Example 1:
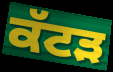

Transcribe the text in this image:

ਕੱਟੜ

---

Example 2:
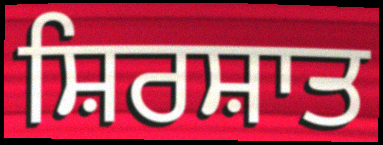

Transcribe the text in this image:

ਸ਼ਿਰਸ਼ਾਤ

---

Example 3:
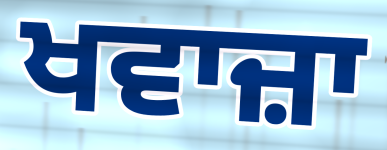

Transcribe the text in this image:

ਖਵਾਜ਼ਾ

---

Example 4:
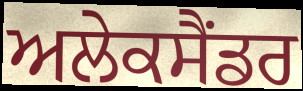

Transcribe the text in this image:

ਅਲੇਕਸੈਂਡਰ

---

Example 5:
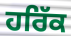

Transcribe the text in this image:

ਹਰਿੱਕ